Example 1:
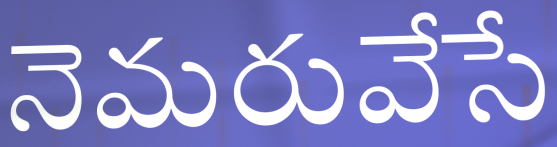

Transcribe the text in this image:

నెమరువేసే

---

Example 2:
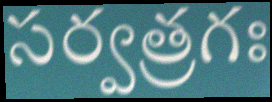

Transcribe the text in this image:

సర్వత్రగః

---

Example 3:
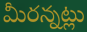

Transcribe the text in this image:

మీరన్నట్లు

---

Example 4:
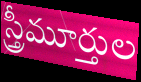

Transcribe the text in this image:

స్త్రీమూర్తుల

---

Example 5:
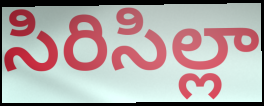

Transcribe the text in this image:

సిరిసిల్లా